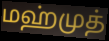
மஹ்முத்